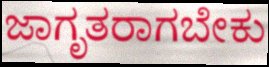
ಜಾಗೃತರಾಗಬೇಕು